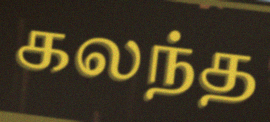
கலந்த